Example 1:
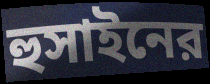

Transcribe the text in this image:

হুসাইনের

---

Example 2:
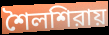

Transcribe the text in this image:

শৈলশিরায়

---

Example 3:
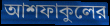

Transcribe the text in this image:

আশফাকুলের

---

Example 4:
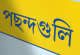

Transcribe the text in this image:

পছন্দগুলি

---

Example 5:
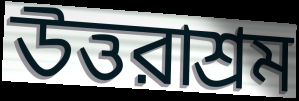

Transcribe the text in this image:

উত্তরাশ্রম